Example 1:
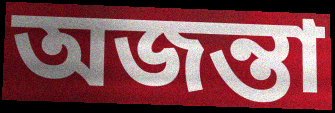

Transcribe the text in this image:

অজন্তা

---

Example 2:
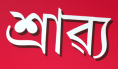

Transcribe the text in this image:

শ্ৰাৱ্য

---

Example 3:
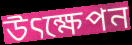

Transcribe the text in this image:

উৎক্ষেপন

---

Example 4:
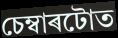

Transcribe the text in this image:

চেম্বাৰটোত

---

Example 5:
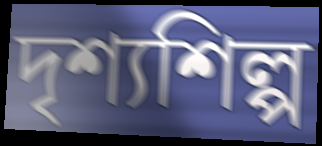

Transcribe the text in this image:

দৃশ্যশিল্প